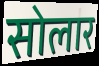
सोलार